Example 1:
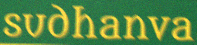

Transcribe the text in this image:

sudhanva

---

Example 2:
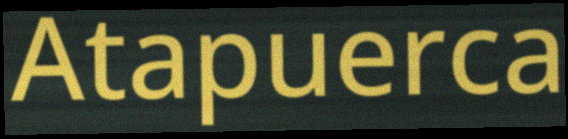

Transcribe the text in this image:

Atapuerca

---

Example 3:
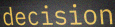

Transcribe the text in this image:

decision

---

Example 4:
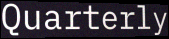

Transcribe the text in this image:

Quarterly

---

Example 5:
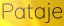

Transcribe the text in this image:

Pataje